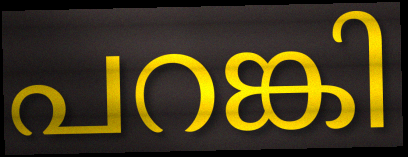
പറങ്കി